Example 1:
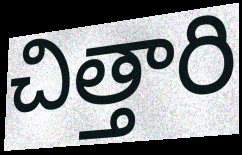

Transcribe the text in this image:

చిత్తారి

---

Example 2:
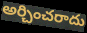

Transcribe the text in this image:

అర్చించరాదు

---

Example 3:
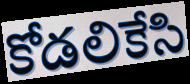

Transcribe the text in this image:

కోడలికేసి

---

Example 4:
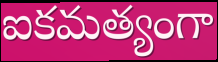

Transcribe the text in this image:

ఐకమత్యంగా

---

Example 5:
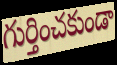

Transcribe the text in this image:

గుర్తించకుండా